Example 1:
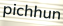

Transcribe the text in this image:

pichhun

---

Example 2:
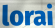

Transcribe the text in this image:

lorai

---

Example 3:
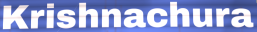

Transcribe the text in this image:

Krishnachura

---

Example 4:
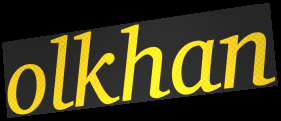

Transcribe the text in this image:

olkhan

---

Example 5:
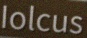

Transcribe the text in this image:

Iolcus